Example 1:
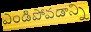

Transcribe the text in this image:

ఎండిపోవడాన్ని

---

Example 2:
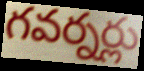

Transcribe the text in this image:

గవర్నర్లు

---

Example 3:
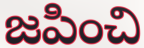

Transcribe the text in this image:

జపించి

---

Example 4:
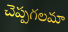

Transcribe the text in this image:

చెప్పగలమా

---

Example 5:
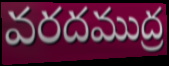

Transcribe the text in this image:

వరదముద్ర